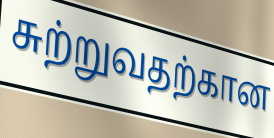
சுற்றுவதற்கான